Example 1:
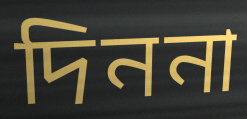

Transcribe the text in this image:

দিননা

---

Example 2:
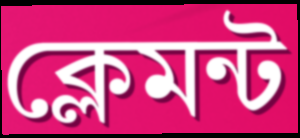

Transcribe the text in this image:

ক্লেমন্ট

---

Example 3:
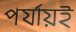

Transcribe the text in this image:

পর্যায়ই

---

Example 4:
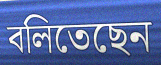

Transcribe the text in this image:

বলিতেছেন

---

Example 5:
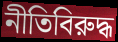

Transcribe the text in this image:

নীতিবিরুদ্ধ